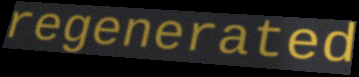
regenerated